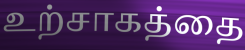
உற்சாகத்தை